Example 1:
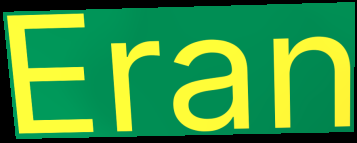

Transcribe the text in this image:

Eran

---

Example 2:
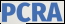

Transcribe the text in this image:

PCRA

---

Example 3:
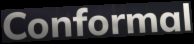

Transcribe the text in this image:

Conformal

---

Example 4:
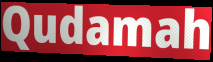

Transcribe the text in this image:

Qudamah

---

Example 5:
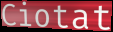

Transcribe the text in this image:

Ciotat